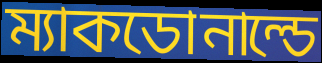
ম্যাকডোনাল্ডে